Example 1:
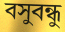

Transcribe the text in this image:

বসুবন্ধু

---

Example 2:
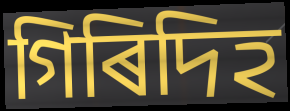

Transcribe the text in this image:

গিৰিদিহ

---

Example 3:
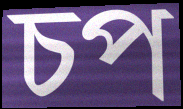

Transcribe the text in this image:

চপ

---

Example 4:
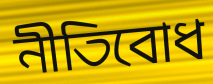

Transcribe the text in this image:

নীতিবোধ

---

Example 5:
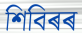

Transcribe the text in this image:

শিবিৰৰ